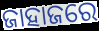
ଜାହାଜରେ